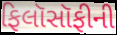
ફિલૉસૉફીની